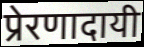
प्रेरणादायी